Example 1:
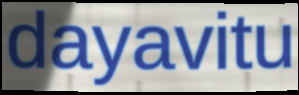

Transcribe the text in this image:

dayavitu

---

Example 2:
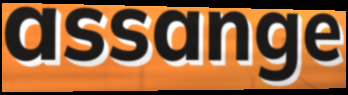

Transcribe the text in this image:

assange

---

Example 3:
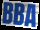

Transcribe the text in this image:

BBA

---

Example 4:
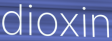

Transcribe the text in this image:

dioxin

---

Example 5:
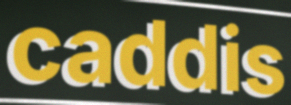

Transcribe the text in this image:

caddis